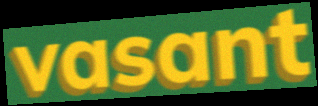
vasant